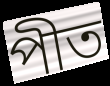
পীত